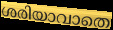
ശരിയാവാതെ